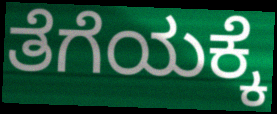
ತೆಗೆಯಕ್ಕೆ